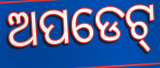
ଅପଡେଟ୍